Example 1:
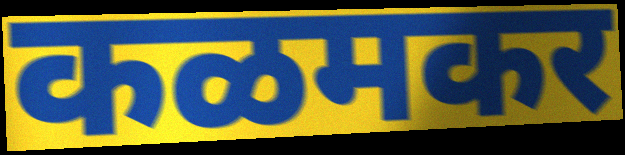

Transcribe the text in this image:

कळमकर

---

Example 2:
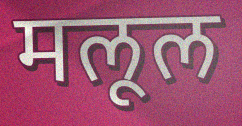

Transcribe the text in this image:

मलूल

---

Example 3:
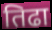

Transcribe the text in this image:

तिढा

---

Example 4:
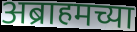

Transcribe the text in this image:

अब्राहमच्या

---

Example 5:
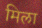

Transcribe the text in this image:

मिला